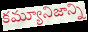
కమ్యూనిజాన్ని